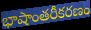
భాషాంతరీకరణం